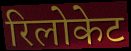
रिलोकेट